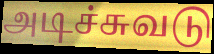
அடிச்சுவடு